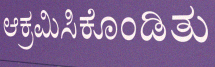
ಆಕ್ರಮಿಸಿಕೊಂಡಿತು